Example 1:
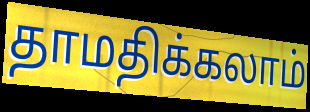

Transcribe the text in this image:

தாமதிக்கலாம்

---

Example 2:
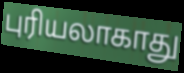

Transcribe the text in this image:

புரியலாகாது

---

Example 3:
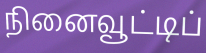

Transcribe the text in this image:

நினைவூட்டிப்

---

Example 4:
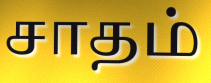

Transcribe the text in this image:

சாதம்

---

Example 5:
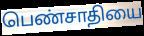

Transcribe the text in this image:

பெண்சாதியை